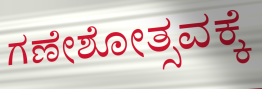
ಗಣೇಶೋತ್ಸವಕ್ಕೆ